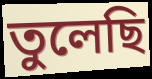
তুলেছি